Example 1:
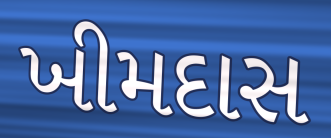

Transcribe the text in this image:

ખીમદાસ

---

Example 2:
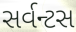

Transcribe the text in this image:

સર્વન્ટસ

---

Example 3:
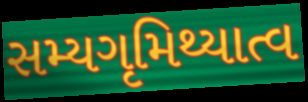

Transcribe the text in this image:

સમ્યગૃમિથ્યાત્વ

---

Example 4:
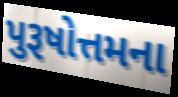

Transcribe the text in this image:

પુરૂષોત્તમના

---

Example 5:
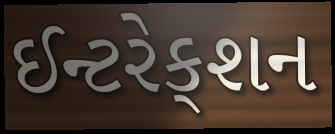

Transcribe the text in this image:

ઈન્ટરેક્‌શન